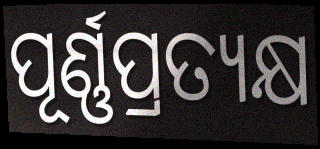
ପୂର୍ଣ୍ଣପ୍ରତ୍ୟକ୍ଷ